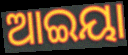
ଆଇୟା